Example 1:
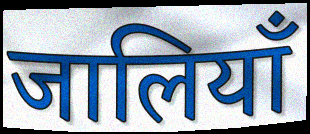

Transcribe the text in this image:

जालियाँ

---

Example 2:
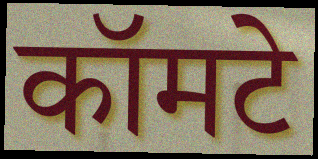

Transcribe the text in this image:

कॉमटे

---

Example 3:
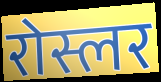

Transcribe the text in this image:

रोस्लर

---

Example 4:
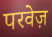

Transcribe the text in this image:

परवेज़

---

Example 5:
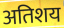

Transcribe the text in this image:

अतिशय